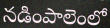
నడింపాలెంలో